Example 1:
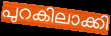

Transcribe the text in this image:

പുറകിലാക്കി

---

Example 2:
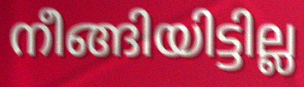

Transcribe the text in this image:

നീങ്ങിയിട്ടില്ല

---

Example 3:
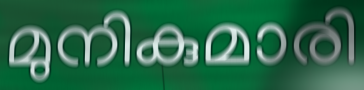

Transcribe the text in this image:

മുനികുമാരി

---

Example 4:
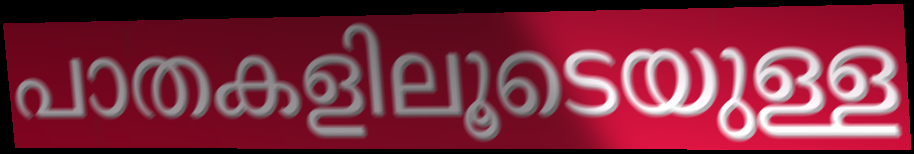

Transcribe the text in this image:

പാതകളിലൂടെയുള്ള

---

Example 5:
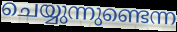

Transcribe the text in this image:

ചെയ്യുന്നുണ്ടെന്ന